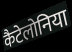
कैटेलोनिया